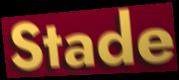
Stade